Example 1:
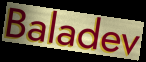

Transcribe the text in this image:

Baladev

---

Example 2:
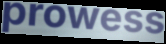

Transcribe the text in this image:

prowess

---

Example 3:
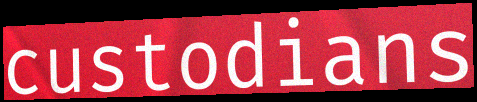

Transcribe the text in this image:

custodians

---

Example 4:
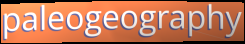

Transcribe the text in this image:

paleogeography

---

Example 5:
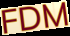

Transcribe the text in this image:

FDM